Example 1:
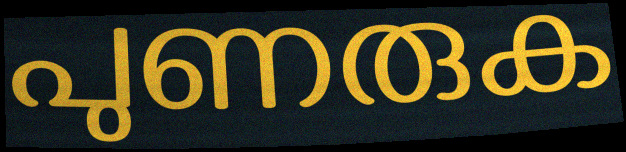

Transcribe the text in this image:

പുണരുക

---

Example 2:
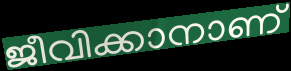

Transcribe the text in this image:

ജീവിക്കാനാണ്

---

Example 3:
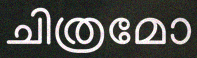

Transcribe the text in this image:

ചിത്രമോ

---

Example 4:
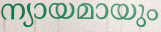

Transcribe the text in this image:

ന്യായമായും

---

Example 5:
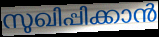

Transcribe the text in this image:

സുഖിപ്പിക്കാൻ